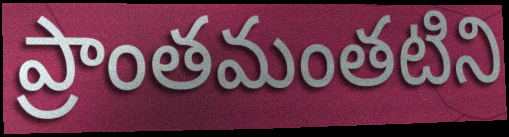
ప్రాంతమంతటిని